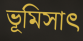
ভূমিসাৎ